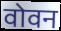
वोवन